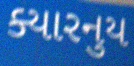
ક્યારનુય